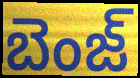
బెంజ్